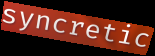
syncretic